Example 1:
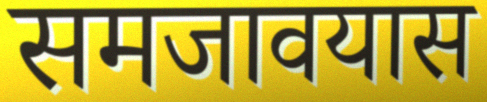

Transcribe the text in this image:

समजावयास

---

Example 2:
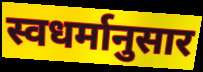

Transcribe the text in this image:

स्वधर्मानुसार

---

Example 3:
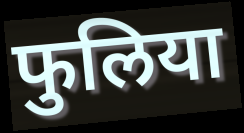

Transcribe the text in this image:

फुलिया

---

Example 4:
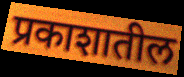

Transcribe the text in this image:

प्रकाशातील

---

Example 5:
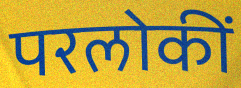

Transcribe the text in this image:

परलोकीं